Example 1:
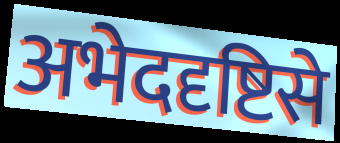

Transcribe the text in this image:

अभेददृष्टिसे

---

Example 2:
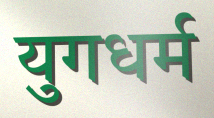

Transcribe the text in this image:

युगधर्म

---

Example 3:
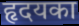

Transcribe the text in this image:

हृदयका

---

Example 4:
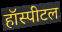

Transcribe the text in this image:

हॉस्पीटल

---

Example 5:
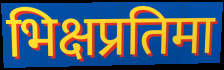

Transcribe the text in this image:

भिक्षप्रतिमा